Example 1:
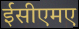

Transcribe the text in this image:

ईसीएमए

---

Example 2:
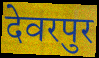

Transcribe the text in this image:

देवरपुर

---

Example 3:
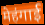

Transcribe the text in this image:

मेहंगाई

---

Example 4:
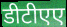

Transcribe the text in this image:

डीटीएए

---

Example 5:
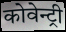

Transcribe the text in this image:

कोवेन्ट्री